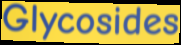
Glycosides